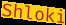
Shloki